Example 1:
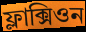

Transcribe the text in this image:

ফ্লাক্সিওন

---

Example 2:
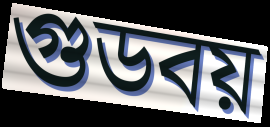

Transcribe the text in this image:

গুডবয়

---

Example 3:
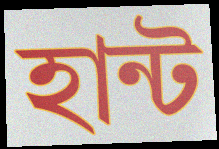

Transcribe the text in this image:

হান্ট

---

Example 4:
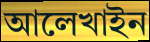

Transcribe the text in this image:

আলেখাইন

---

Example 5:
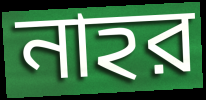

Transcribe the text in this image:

নাহর